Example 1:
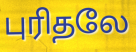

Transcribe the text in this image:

புரிதலே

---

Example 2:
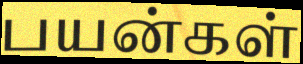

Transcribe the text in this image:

பயன்கள்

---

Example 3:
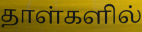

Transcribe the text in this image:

தாள்களில்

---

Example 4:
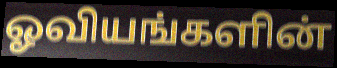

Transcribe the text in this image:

ஓவியங்களின்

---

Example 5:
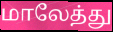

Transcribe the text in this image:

மாலேத்து